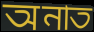
অনাত